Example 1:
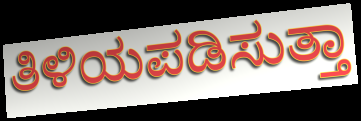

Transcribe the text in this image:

ತಿಳಿಯಪಡಿಸುತ್ತಾ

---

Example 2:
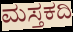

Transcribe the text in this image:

ಮಸ್ತಕದಿ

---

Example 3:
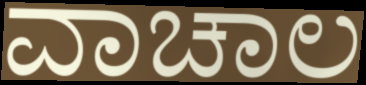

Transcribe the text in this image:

ವಾಚಾಲ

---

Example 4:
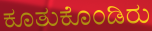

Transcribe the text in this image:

ಕೂತುಕೊಂಡಿರು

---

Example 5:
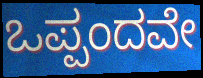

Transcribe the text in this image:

ಒಪ್ಪಂದವೇ